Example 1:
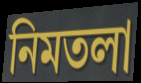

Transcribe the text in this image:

নিমতলা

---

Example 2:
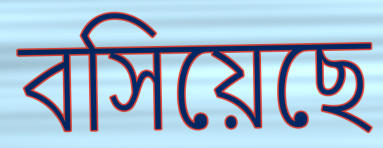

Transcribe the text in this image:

বসিয়েছে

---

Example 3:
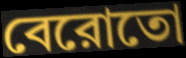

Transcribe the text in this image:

বেরোতো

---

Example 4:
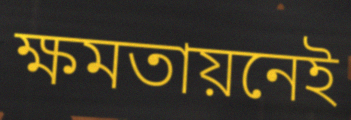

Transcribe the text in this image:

ক্ষমতায়নেই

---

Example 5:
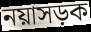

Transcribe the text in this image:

নয়াসড়ক